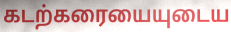
கடற்கரையையுடைய